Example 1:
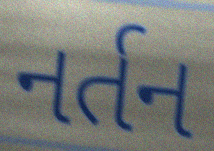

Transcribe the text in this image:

નર્તન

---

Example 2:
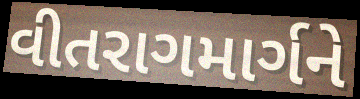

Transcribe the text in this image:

વીતરાગમાર્ગને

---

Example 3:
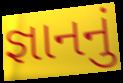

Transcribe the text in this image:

જ્ઞાનનું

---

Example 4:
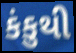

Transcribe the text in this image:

કંકુથી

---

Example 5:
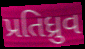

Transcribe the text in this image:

પ્રતિધ્રુવ